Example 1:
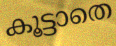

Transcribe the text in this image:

കൂട്ടാതെ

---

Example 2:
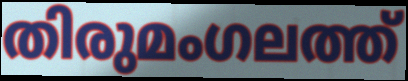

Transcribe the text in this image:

തിരുമംഗലത്ത്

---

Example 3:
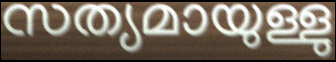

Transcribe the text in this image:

സത്യമായുള്ളു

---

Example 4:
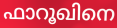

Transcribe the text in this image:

ഫാറൂഖിനെ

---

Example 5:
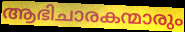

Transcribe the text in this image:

ആഭിചാരകന്മാരും